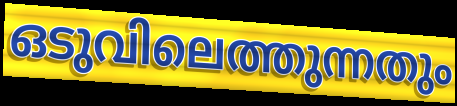
ഒടുവിലെത്തുന്നതും